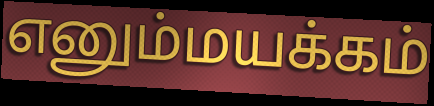
எனும்மயக்கம்